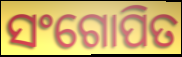
ସଂଗୋପିତ